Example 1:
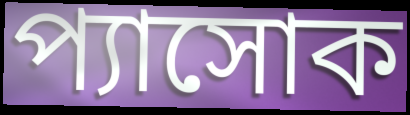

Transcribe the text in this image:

প্যাসোক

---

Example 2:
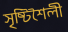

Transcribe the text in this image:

সৃষ্টিশৈলী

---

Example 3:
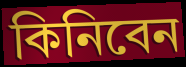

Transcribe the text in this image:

কিনিবেন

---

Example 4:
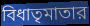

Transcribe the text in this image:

বিধাতৃমাতার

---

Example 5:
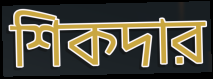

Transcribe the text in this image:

শিকদার